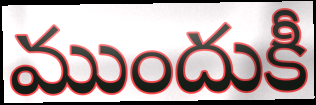
ముందుకీ